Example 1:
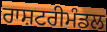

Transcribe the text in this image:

ਰਾਸ਼ਟਰੀਮੰਡਲ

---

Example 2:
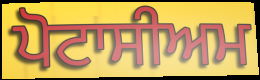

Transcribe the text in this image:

ਪੋਟਾਸੀਅਮ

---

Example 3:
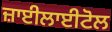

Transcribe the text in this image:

ਜ਼ਾਈਲਾਈਟੋਲ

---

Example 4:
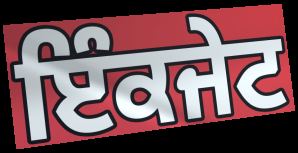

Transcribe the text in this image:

ਇੰਕਜੇਟ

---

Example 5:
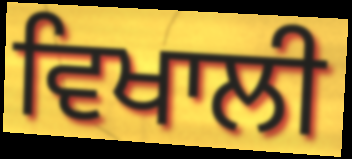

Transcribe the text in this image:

ਵਿਖਾਲੀ